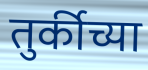
तुर्कीच्या